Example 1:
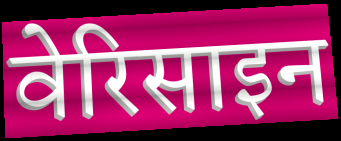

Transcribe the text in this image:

वेरिसाइन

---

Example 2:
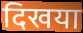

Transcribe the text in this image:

दिखया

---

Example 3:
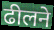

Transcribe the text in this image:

ढीलने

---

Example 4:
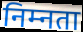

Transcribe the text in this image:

निम्नता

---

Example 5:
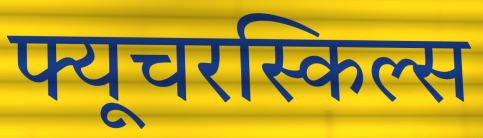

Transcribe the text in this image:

फ्यूचरस्किल्स